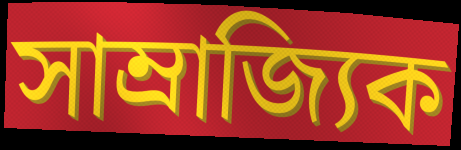
সাম্ৰাজ্যিক